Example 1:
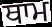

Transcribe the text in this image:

ਥਾਮ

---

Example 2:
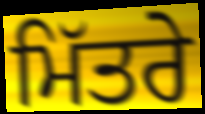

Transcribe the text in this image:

ਮਿੱਤਰੇ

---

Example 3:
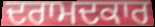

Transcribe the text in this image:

ਦਰਾਮਦਕਾਰ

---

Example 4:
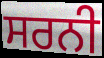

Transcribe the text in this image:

ਸਰਨੀ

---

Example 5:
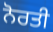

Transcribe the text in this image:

ਨੋਰਤੀ